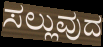
ಸಲ್ಲುವುದ